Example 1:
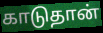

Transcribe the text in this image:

காடுதான்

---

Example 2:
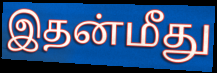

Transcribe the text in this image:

இதன்மீது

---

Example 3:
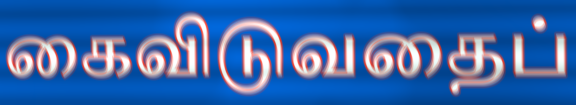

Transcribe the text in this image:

கைவிடுவதைப்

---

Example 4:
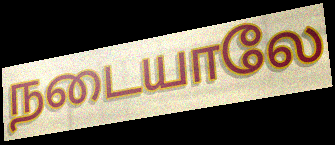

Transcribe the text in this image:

நடையாலே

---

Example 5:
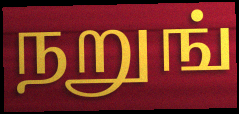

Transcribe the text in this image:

நறுங்